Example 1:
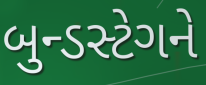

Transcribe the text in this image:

બુન્ડસ્ટેગને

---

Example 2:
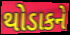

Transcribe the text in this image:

થોડાકને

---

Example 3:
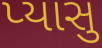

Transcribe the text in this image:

પ્યાસુ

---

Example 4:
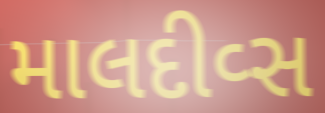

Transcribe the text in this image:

માલદીવ્સ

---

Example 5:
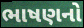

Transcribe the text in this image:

ભાષણનો